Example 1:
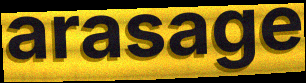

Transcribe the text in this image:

arasage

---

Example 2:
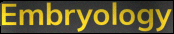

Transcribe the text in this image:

Embryology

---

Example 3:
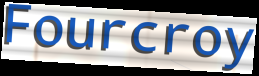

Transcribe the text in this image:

Fourcroy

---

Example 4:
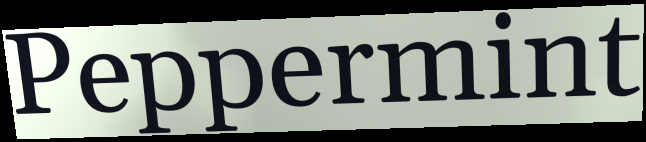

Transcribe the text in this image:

Peppermint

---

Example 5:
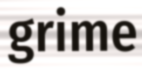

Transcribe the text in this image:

grime